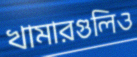
খামারগুলিও